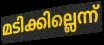
മടിക്കില്ലെന്ന്